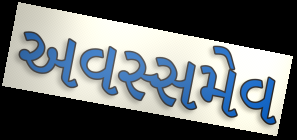
અવસ્સમેવ